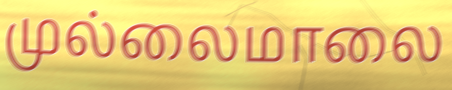
முல்லைமாலை